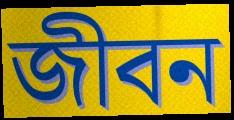
জীবন